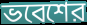
ভবেশের